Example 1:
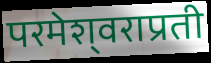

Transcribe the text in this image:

परमेश्वराप्रती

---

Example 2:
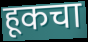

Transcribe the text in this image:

हूकचा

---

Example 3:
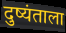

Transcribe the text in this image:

दुष्यंताला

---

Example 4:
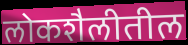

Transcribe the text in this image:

लोकशैलीतील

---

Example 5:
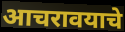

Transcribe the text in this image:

आचरावयाचे